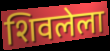
शिवलेला